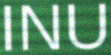
INU